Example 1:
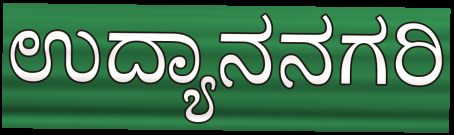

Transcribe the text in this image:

ಉದ್ಯಾನನಗರಿ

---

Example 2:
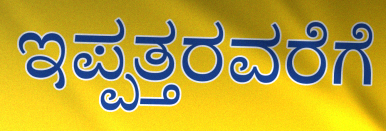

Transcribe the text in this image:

ಇಪ್ಪತ್ತರವರೆಗೆ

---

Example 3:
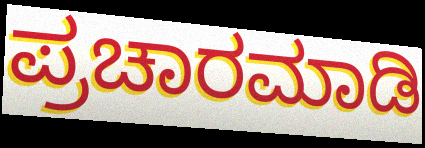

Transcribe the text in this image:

ಪ್ರಚಾರಮಾಡಿ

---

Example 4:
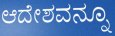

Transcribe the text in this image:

ಆದೇಶವನ್ನೂ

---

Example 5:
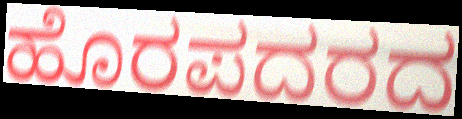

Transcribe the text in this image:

ಹೊರಪದರದ